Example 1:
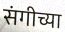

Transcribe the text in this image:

संगीच्या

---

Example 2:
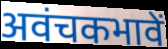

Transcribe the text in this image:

अवंचकभावें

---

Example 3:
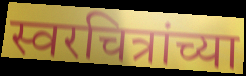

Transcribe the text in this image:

स्वरचित्रांच्या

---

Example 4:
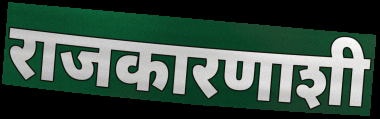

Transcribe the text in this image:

राजकारणाशी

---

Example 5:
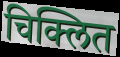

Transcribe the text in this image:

चिक्लित